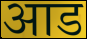
आड